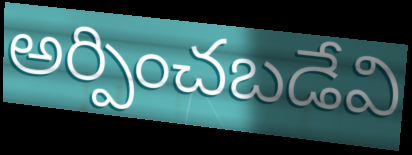
అర్పించబడేవి